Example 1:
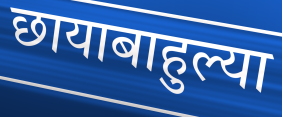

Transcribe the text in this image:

छायाबाहुल्या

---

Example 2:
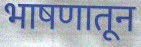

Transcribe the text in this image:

भाषणातून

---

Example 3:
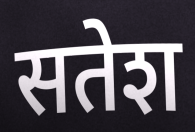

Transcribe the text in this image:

सतेश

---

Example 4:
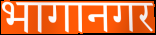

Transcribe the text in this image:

भागानगर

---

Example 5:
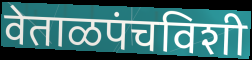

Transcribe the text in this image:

वेताळपंचविशी